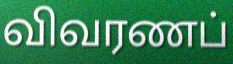
விவரணப்